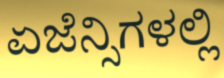
ಏಜೆನ್ಸಿಗಳಲ್ಲಿ